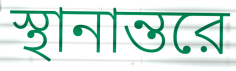
স্থানান্তরে